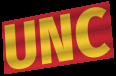
UNC